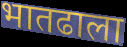
भातढाला